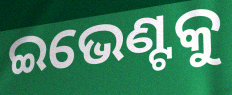
ଇଭେଣ୍ଟକୁ